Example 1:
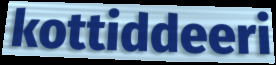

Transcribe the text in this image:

kottiddeeri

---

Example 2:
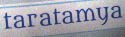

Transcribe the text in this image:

taratamya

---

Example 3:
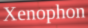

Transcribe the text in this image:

Xenophon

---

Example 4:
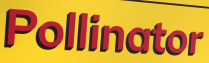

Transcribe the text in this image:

Pollinator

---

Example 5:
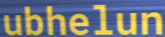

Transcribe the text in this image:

ubhelun